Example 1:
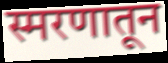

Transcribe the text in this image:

स्मरणातून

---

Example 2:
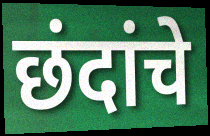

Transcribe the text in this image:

छंदांचे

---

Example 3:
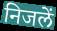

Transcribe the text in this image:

निजलें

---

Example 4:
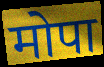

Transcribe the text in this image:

मोपा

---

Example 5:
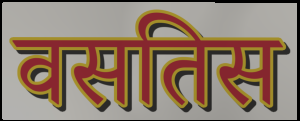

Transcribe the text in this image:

वसतिस